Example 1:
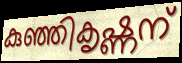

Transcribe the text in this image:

കുഞ്ഞികൃഷ്ണന്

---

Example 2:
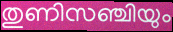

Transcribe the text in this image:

തുണിസഞ്ചിയും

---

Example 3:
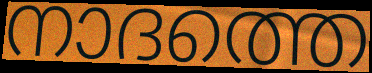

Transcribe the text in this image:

നാദത്തെ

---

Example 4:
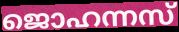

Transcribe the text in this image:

ജൊഹന്നസ്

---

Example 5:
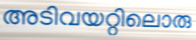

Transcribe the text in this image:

അടിവയറ്റിലൊരു